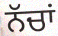
ਨੱਚਾਂ